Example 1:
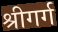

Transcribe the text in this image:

श्रीगर्ग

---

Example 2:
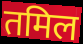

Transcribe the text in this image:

तमिल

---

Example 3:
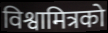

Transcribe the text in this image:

विश्वामित्रको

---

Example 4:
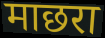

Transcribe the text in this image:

माछरा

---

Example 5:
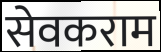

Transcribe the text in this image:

सेवकराम